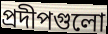
প্রদীপগুলো